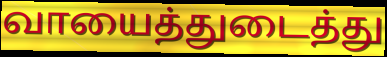
வாயைத்துடைத்து